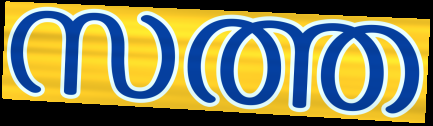
സത്ത